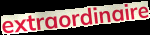
extraordinaire